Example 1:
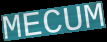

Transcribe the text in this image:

MECUM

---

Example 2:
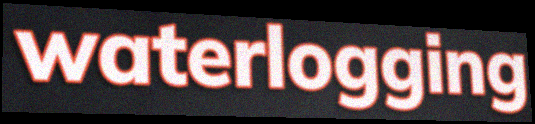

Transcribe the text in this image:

waterlogging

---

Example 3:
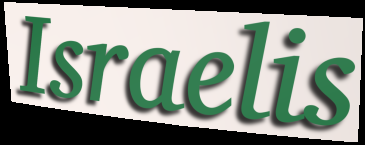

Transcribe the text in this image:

Israelis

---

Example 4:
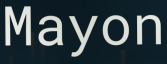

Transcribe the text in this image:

Mayon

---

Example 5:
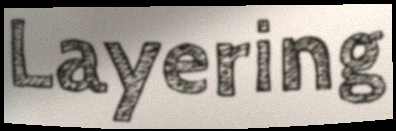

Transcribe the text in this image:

Layering